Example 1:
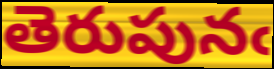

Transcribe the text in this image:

తెరుపునఁ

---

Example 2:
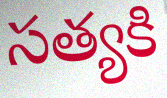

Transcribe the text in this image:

సత్యకి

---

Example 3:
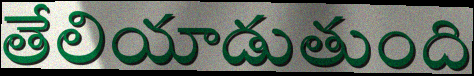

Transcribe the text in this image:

తేలియాడుతుంది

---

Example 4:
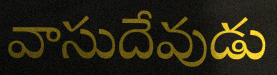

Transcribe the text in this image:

వాసుదేవుడు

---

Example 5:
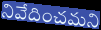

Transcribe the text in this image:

నివేదించమని